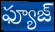
ఫ్యూజ్